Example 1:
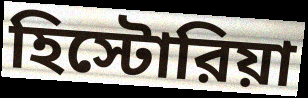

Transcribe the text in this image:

হিস্টোরিয়া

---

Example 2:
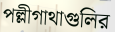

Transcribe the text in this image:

পল্লীগাথাগুলির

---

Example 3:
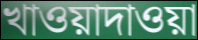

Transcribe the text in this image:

খাওয়াদাওয়া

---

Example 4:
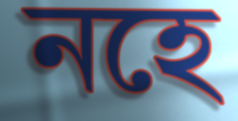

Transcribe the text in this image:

নহে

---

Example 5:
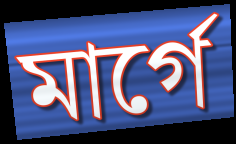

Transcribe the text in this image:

মার্গে